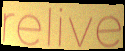
relive